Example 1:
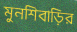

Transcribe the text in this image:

মুনশিবাড়ির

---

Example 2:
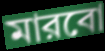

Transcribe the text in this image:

মারবো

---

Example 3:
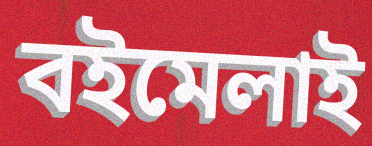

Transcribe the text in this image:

বইমেলাই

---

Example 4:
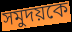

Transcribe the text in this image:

সমুদয়কে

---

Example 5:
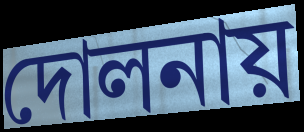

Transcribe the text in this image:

দোলনায়